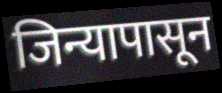
जिन्यापासून